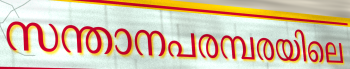
സന്താനപരമ്പരയിലെ